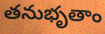
తనుభృతాం